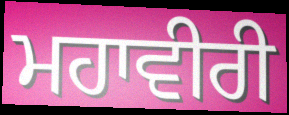
ਮਹਾਵੀਰੀ